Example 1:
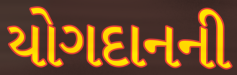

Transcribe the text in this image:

યોગદાનની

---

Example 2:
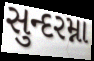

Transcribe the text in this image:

સુન્દરમ્ના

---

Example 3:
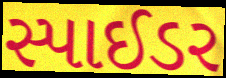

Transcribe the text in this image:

સ્પાઈડર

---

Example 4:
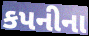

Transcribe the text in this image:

કપનીના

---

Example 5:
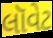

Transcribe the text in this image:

લૉવેટ